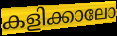
കളിക്കാലോ